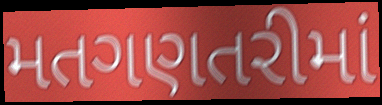
મતગણતરીમાં